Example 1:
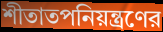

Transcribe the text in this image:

শীতাতপনিয়ন্ত্রণের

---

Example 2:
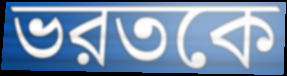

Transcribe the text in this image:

ভরতকে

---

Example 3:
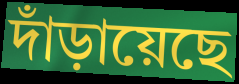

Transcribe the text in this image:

দাঁড়ায়েছে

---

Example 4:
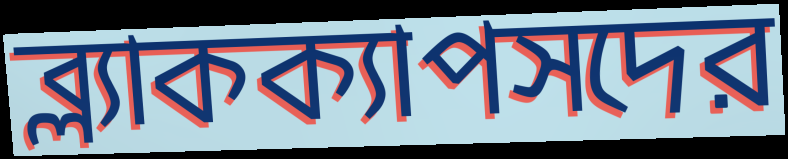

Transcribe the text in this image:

ব্ল্যাকক্যাপসদের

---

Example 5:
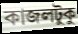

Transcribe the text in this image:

কাজলটুকু